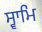
ਸ੍ਵਾਮਿ